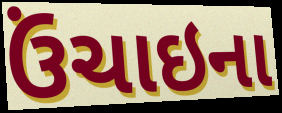
ઉંચાઇના